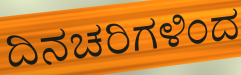
ದಿನಚರಿಗಳಿಂದ